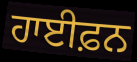
ਹਾਈਫ਼ਨ